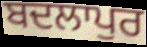
ਬਦਲਾਪੁਰ